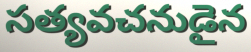
సత్యవచనుడైన